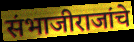
संभाजीराजांचे